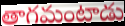
తాగమంటాడు